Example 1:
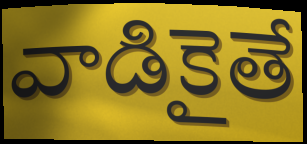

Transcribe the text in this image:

వాడికైతే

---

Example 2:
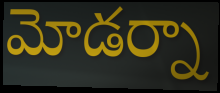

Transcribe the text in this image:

మోడర్నా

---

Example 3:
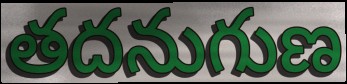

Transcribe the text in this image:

తదనుగుణ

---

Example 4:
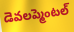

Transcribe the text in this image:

డెవలప్మెంటల్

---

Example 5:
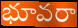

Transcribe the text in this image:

భూవరా